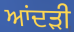
ਆਂਦੜੀ